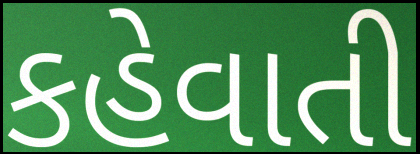
કહેવાતી